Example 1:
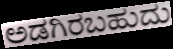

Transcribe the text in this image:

ಅಡಗಿರಬಹುದು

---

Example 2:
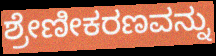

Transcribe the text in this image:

ಶ್ರೇಣೀಕರಣವನ್ನು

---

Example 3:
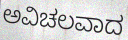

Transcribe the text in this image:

ಅವಿಚಲವಾದ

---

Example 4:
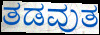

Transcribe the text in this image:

ತಡವುತ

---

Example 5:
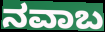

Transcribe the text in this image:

ನವಾಬ